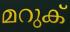
മറുക്